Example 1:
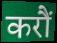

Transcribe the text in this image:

करौं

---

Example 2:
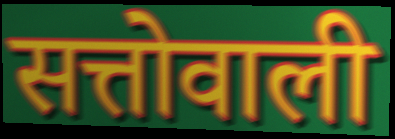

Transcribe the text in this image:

सत्तोवाली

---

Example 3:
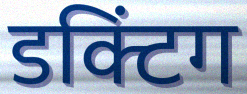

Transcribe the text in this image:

डक्टिंग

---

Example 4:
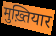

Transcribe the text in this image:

मुख़्तियार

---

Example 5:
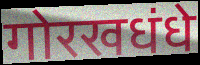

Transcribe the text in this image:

गोरखधंधे